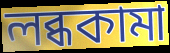
লব্ধকামা